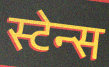
स्टेन्स